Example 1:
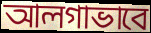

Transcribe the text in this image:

আলগাভাবে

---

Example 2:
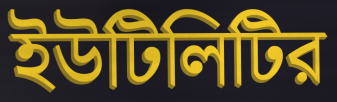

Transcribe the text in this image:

ইউটিলিটির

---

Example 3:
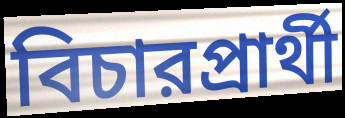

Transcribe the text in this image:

বিচারপ্রার্থী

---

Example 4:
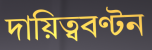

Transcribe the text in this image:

দায়িত্ববণ্টন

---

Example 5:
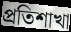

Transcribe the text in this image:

প্রতিশাখা